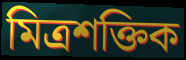
মিত্ৰশক্তিক